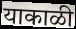
याकाळी